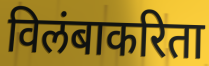
विलंबाकरिता